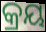
କ୍ରୟ